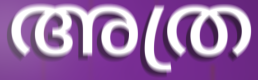
അത്ര